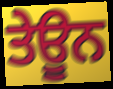
ਤੇਊਨ